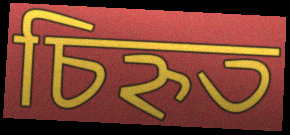
চিহ্নত